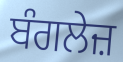
ਬੰਗਲੇਜ਼